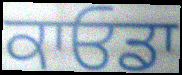
ਕਾਓਡਾ